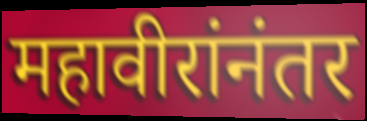
महावीरांनंतर